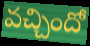
వచ్చిందో